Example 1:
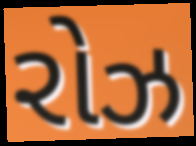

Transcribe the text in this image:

રોઝ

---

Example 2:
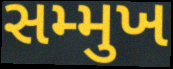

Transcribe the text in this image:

સમ્મુખ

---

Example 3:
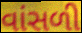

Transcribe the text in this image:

વાંસળી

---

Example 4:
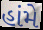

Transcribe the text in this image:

હાંમે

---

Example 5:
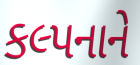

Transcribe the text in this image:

કલ્પનાને